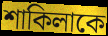
শাকিলাকে